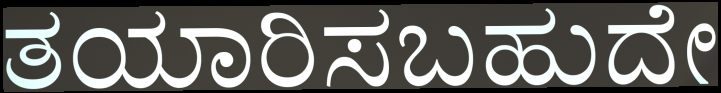
ತಯಾರಿಸಬಹುದೇ